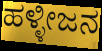
ಹಳ್ಳೀಜನ